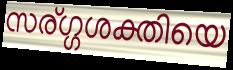
സര്ഗ്ഗശക്തിയെ